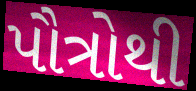
પૌત્રોથી